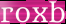
roxb